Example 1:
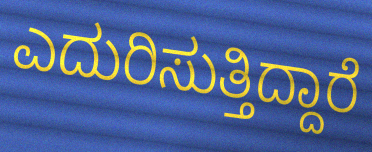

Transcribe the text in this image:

ಎದುರಿಸುತ್ತಿದ್ದಾರೆ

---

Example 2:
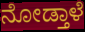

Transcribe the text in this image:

ನೋಡ್ತಾಳೆ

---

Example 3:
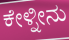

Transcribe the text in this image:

ಕೇಳ್ನೀನು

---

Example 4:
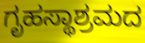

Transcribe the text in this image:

ಗೃಹಸ್ಥಾಶ್ರಮದ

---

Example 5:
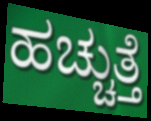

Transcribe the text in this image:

ಹಚ್ಚುತ್ತೆ